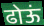
ढोऊं